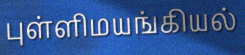
புள்ளிமயங்கியல்